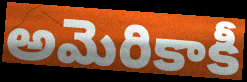
అమెరికాకీ